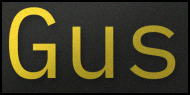
Gus